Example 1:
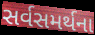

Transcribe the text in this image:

સર્વસમર્થના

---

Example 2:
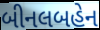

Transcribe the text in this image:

બીનલબહેન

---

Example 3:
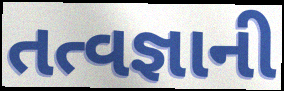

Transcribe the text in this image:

તત્વજ્ઞાની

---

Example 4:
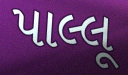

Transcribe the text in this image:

પાલ્લૂ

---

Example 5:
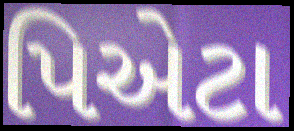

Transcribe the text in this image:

પિએટા